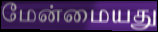
மேன்மையது